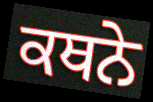
ਕਥਨੇ